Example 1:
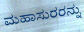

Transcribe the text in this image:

ಮಹಾಸುರರನ್ನು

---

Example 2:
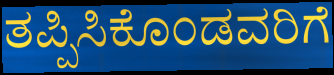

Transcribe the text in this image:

ತಪ್ಪಿಸಿಕೊಂಡವರಿಗೆ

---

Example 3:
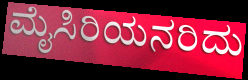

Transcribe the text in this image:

ಮೈಸಿರಿಯನರಿದು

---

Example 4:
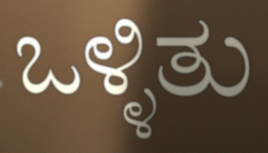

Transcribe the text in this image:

ಒಳ್ಳಿತು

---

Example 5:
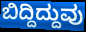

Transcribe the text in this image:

ಬಿದ್ದಿದ್ದುವು